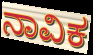
ನಾವಿಕ